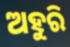
ଅହୁରି